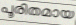
പൂരിതമായ